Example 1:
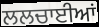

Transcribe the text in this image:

ਲਲਚਾਈਆਂ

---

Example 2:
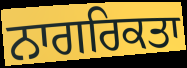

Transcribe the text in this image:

ਨਾਗਰਿਕਤਾ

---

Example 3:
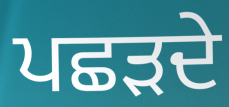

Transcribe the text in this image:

ਪਛੜਦੇ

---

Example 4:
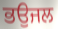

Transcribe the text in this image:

ਭਉਜਲ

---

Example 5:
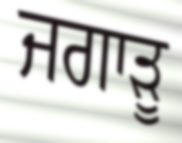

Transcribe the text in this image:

ਜਗਾੜੂ